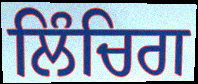
ਲਿੰਚਿਗ